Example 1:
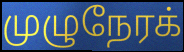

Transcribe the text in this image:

முழுநேரக்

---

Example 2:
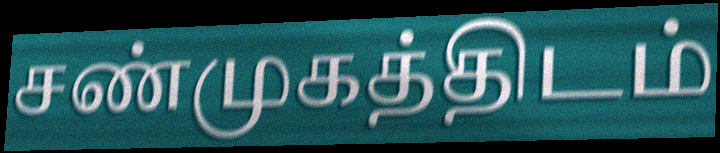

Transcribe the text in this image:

சண்முகத்திடம்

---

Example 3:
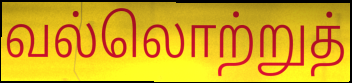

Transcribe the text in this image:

வல்லொற்றுத்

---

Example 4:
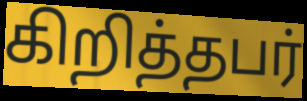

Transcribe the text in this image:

கிறித்தபர்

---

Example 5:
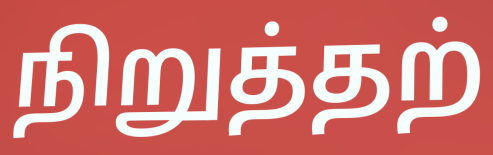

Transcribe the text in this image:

நிறுத்தற்